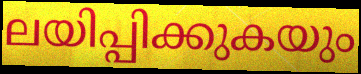
ലയിപ്പിക്കുകയും